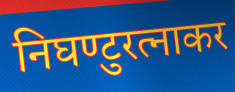
निघण्टुरत्नाकर